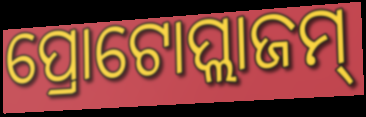
ପ୍ରୋଟୋପ୍ଲାଜମ୍